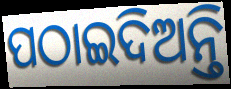
ପଠାଇଦିଅନ୍ତି